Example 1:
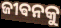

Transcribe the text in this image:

ଜୀଵନକୁ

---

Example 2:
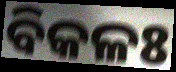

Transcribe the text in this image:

ବିକଳଃ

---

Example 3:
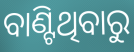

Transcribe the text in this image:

ବାଣ୍ଟିଥିବାରୁ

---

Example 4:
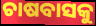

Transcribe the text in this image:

ଚାଷବାସକୁ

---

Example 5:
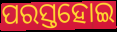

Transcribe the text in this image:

ପରସ୍ତହୋଇ